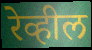
रेव्हील